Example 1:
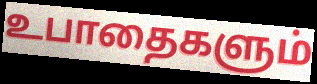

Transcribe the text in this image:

உபாதைகளும்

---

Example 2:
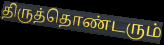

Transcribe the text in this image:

திருத்தொண்டரும்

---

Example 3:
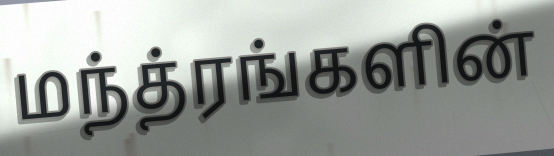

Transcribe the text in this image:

மந்த்ரங்களின்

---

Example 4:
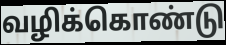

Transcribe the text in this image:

வழிக்கொண்டு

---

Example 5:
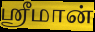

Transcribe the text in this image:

ஸ்ரீமான்